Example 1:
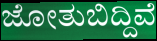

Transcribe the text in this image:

ಜೋತುಬಿದ್ದಿವೆ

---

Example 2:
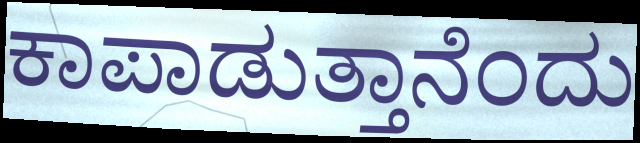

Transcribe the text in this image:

ಕಾಪಾಡುತ್ತಾನೆಂದು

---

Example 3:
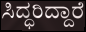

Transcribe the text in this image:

ಸಿದ್ಧರಿದ್ದಾರೆ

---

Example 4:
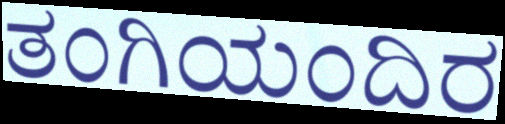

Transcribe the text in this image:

ತಂಗಿಯಂದಿರ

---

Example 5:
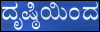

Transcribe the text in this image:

ದೃಷ್ಠಿಯಿಂದ